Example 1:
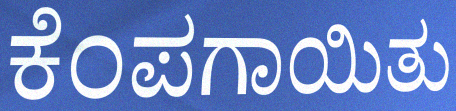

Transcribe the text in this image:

ಕೆಂಪಗಾಯಿತು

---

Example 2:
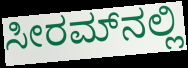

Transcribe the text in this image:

ಸೀರಮ್‌ನಲ್ಲಿ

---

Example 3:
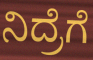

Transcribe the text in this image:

ನಿದ್ರೆಗೆ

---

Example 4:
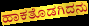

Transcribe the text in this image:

ಹಾಕತೊಡಗಿದನು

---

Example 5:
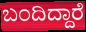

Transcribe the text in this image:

ಬಂದಿದ್ದಾರೆ